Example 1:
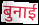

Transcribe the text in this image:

बुनाई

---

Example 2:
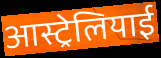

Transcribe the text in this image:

आस्ट्रेलियाई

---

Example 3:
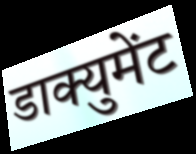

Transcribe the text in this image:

डाक्युमेंट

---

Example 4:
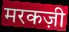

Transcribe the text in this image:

मरकज़ी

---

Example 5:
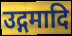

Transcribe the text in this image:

उद्गमादि